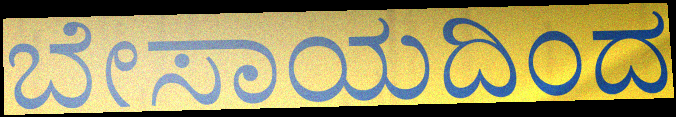
ಬೇಸಾಯದಿಂದ